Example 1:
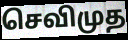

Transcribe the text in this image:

செவிமுத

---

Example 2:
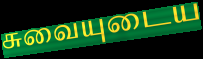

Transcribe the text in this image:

சுவையுடைய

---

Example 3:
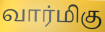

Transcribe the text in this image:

வார்மிகு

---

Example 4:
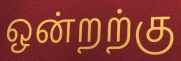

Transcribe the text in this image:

ஒன்றற்கு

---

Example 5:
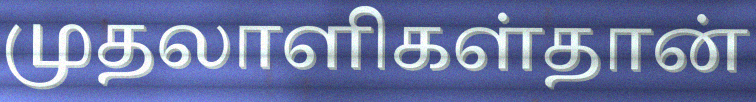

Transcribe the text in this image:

முதலாளிகள்தான்